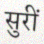
सुरीं